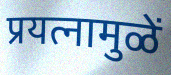
प्रयत्नामुळें